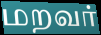
மறவர்